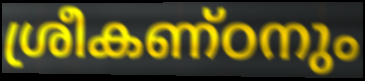
ശ്രീകണ്ഠനും